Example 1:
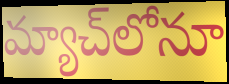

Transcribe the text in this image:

మ్యాచ్‌లోనూ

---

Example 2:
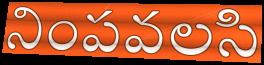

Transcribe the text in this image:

నింపవలసి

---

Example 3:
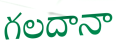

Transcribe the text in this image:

గలదానా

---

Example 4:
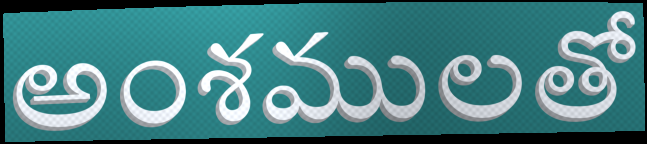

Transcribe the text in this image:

అంశములతో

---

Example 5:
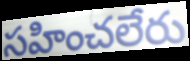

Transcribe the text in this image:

సహించలేరు